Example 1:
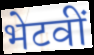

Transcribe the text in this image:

भेटवीं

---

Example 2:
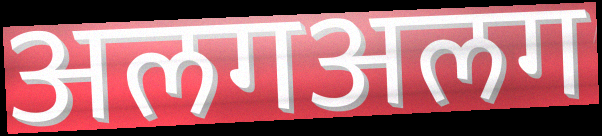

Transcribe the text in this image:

अलगअलग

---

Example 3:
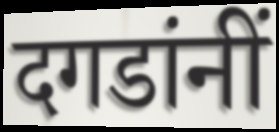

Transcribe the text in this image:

दगडांनीं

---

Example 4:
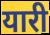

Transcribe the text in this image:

यारी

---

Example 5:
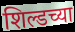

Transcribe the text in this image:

शिल्डच्या